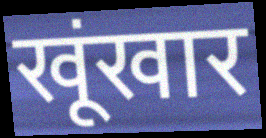
खूंखार